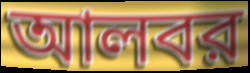
আলবর